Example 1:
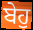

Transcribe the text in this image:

ਬੇਹੁ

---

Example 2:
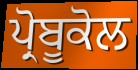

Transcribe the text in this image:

ਪ੍ਰੋਬੂਕੋਲ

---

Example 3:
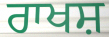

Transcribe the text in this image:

ਰਾਖਸ਼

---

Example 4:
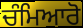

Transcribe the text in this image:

ਚੰਮਿਆਰੋ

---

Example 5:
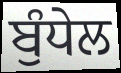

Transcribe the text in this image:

ਬੁੰਧੇਲ